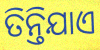
ତିନ୍ତିଯାଏ